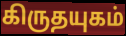
கிருதயுகம்